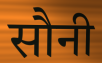
सौनी